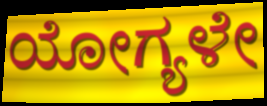
ಯೋಗ್ಯಳೇ